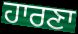
ਹਾਰਣਾ